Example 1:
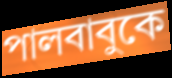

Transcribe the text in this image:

পালবাবুকে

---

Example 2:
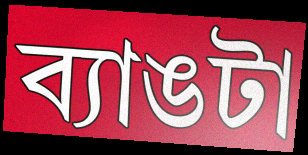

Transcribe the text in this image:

ব্যাঙটা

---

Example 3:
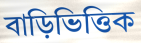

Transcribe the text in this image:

বাড়িভিত্তিক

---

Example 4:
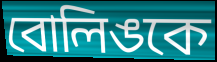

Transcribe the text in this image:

বোলিঙকে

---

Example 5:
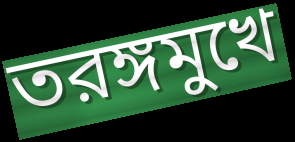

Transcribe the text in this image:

তরঙ্গমুখে